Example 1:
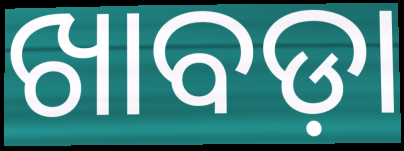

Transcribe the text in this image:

ଖାବଡ଼ା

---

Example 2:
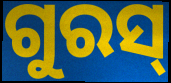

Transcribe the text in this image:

ଗୁରସ୍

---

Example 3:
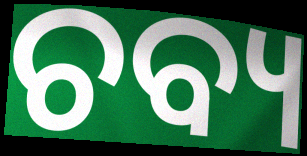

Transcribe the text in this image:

ଚବ୍ୟ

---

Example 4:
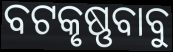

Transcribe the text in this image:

ବଟକୃଷ୍ଣବାବୁ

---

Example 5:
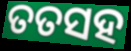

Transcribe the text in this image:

ତତସହ